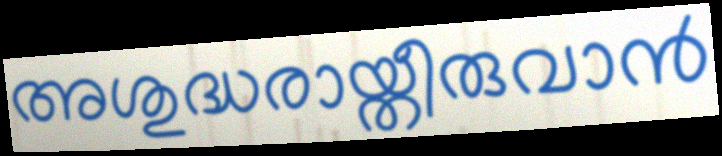
അശുദ്ധരായ്തീരുവാൻ